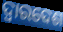
ଦ୍ଵାରଦେଶ